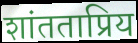
शांतताप्रिय